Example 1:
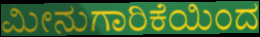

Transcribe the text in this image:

ಮೀನುಗಾರಿಕೆಯಿಂದ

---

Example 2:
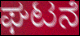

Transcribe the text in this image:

ಘಟನೆ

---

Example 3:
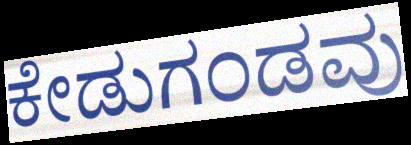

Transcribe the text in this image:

ಕೇಡುಗಂಡವು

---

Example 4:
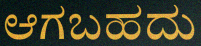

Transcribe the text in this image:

ಆಗಬಹದು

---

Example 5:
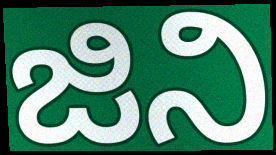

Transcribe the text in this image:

ಜಿನಿ